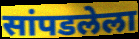
सांपडलेला